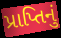
પ્રાપ્‍તિનું